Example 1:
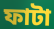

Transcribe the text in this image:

ফাটা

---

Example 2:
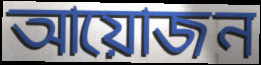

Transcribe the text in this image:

আয়োজন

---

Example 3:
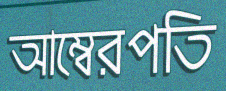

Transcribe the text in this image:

আম্বেরপতি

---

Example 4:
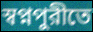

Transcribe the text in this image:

স্বপ্নপুরীতে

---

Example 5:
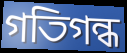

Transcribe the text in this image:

গতিগন্ধ